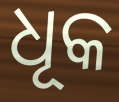
ଧୂକ